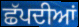
ਛੱਪਦੀਆਂ